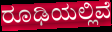
ರೂಢಿಯಲ್ಲಿವೆ